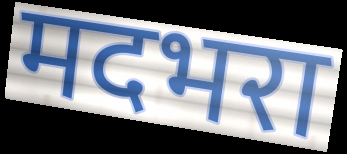
मदभरा